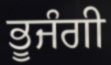
ਭੂਜੰਗੀ